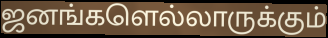
ஜனங்களெல்லாருக்கும்